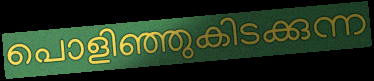
പൊളിഞ്ഞുകിടക്കുന്ന